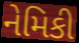
નેમિકી